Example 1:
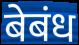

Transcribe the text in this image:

बेबंध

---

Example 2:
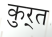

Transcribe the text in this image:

कुर्त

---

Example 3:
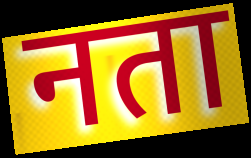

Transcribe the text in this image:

नता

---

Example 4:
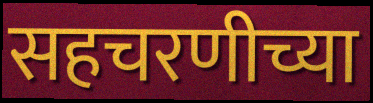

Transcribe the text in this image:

सहचरणीच्या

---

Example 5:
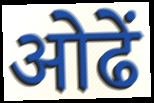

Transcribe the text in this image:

ओढें